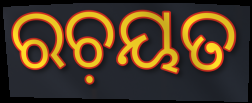
ରଚ଼ୟତ